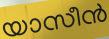
യാസീൻ